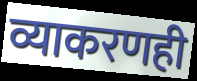
व्याकरणही